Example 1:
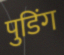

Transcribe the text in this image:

पुडिंग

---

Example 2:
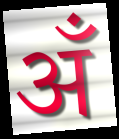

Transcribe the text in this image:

अँ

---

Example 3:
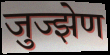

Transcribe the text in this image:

जुज्झेण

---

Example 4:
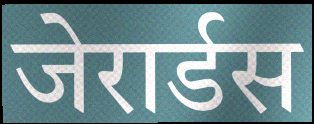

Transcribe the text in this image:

जेरार्डस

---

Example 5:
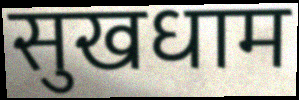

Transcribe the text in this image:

सुखधाम